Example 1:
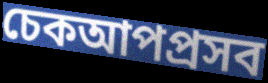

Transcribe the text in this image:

চেকআপপ্রসব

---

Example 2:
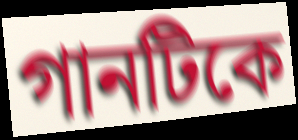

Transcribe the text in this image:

গানটিকে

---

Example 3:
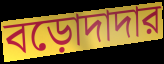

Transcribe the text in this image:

বড়োদাদার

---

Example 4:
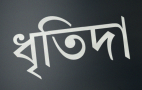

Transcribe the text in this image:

ধৃতিদা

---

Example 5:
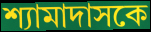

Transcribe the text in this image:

শ্যামাদাসকে